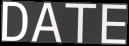
DATE